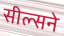
सील्सने